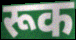
रूक